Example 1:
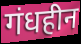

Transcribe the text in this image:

गंधहीन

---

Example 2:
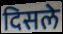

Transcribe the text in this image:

दिसले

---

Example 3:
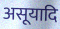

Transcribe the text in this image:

असूयादि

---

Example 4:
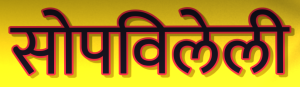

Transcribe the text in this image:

सोपविलेली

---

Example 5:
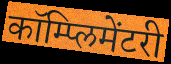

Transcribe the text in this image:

कॉम्प्लिमेंटरी